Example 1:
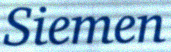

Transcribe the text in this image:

Siemen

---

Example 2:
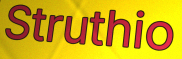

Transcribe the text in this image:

Struthio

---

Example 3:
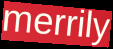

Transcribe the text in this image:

merrily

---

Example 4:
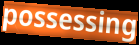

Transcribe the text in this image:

possessing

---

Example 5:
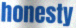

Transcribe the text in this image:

honesty